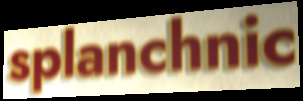
splanchnic